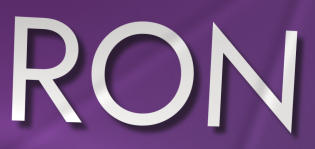
RON